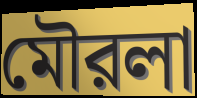
মৌরলা